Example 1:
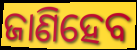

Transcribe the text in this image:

ଜାଣିହେବ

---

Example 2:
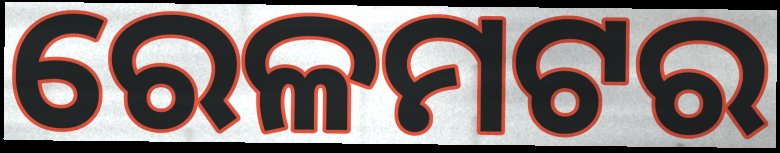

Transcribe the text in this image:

ରେଳମଟର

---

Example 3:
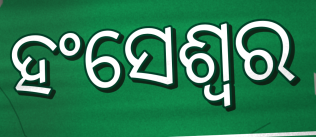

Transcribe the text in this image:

ହଂସେଶ୍ୱର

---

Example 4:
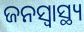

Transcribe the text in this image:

ଜନସ୍ୱାସ୍ଥ୍ୟ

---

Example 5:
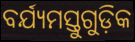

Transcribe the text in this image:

ବର୍ଯ୍ୟମସ୍ତୁଗୁଡ଼ିକ